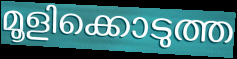
മൂളിക്കൊടുത്ത